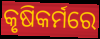
କୃଷିକର୍ମରେ